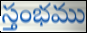
స్తంభము